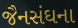
જૈનસંઘના